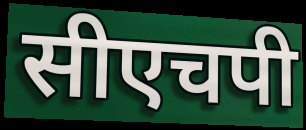
सीएचपी